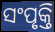
ସଂପୃକ୍ତି